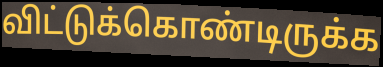
விட்டுக்கொண்டிருக்க